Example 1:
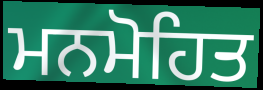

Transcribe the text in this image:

ਮਨਮੋਹਿਤ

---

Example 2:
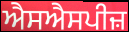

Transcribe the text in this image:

ਐਸਐਸਪੀਜ਼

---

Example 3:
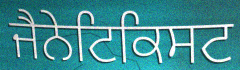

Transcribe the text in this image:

ਜੈਨੇਟਿਕਿਸਟ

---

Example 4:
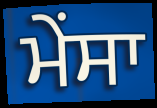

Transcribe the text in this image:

ਮੇਂਸਾ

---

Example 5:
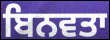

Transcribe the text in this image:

ਬਿਨਵਤਾ